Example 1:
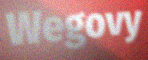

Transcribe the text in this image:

Wegovy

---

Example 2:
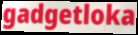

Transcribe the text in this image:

gadgetloka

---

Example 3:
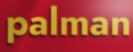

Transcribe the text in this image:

palman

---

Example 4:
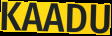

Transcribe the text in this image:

KAADU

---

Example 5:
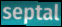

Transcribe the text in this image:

septal